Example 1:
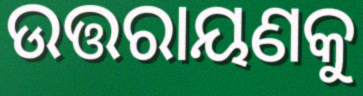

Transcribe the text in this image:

ଉତ୍ତରାୟଣକୁ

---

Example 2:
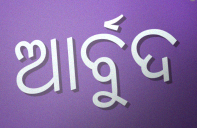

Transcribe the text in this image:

ଆର୍ବୁଦ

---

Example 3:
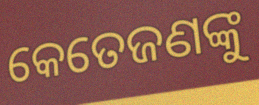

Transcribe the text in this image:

କେତେଜଣଙ୍କୁ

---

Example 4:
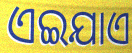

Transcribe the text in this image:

ଏଇଯାଏ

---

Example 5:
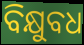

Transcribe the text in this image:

ବିକ୍ଷୁବଧ